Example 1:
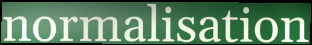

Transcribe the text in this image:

normalisation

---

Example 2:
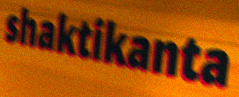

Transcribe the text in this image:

shaktikanta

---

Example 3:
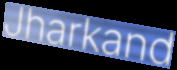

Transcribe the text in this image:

Jharkand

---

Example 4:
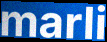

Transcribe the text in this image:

marli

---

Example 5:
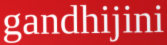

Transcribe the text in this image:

gandhijini